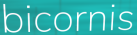
bicornis